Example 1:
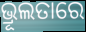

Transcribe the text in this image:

ଭ୍ରୂଲତାରେ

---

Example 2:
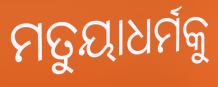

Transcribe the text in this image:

ମତୁୟାଧର୍ମକୁ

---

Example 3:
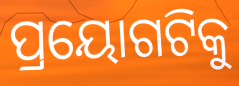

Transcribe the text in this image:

ପ୍ରୟୋଗଟିକୁ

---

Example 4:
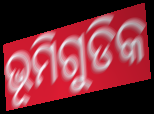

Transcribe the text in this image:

ଭୂମିଗୁଡିକ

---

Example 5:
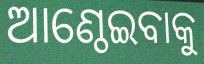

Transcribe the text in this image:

ଆଣ୍ଠେଇବାକୁ